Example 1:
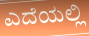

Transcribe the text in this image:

ಎದೆಯಲ್ಲಿ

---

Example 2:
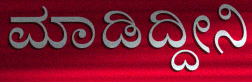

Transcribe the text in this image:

ಮಾಡಿದ್ದೀನಿ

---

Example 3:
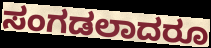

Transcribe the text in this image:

ಸಂಗಡಲಾದರೂ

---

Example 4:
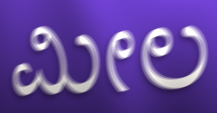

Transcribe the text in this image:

ಮೀಲ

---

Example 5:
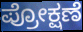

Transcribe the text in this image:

ಪ್ರೋಕ್ಷಣೆ